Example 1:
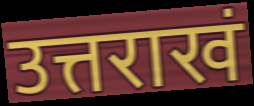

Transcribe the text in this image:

उत्तराखं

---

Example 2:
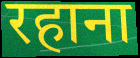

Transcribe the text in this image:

रहाना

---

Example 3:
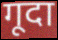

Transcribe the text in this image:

गूदा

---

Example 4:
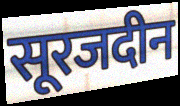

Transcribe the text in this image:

सूरजदीन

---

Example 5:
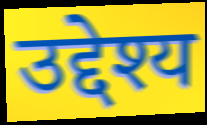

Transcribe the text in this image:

उद्देश्‍य